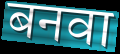
बनवा